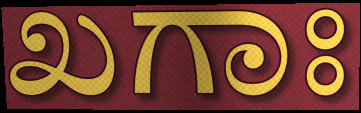
ಖಗಾಃ